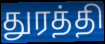
துரத்தி